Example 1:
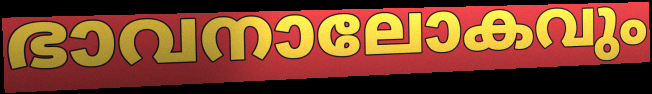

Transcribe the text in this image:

ഭാവനാലോകവും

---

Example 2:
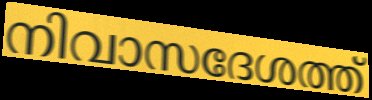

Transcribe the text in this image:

നിവാസദേശത്ത്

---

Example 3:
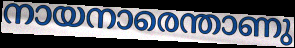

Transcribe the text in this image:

നായനാരെന്താണു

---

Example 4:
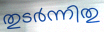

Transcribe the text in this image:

തുടർന്നിതു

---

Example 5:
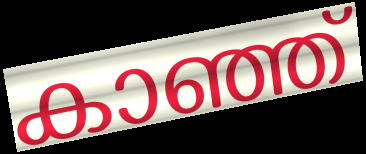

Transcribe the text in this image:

കാഞ്ഞ്